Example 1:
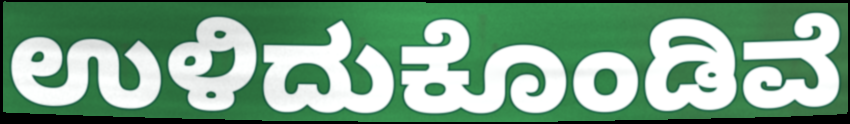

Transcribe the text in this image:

ಉಳಿದುಕೊಂಡಿವೆ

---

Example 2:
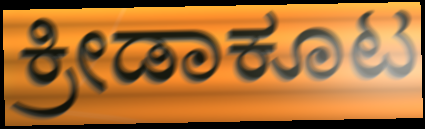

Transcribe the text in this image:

ಕ್ರೀಡಾಕೂಟ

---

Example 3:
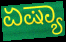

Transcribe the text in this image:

ಏಷ್ಯಾ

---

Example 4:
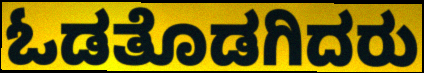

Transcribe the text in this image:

ಓಡತೊಡಗಿದರು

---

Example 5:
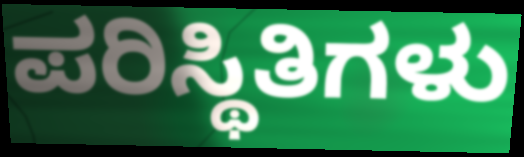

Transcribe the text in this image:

ಪರಿಸ್ಥಿತಿಗಳು